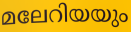
മലേറിയയും